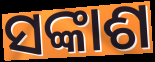
ସଙ୍କାଶ